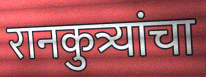
रानकुत्र्यांचा